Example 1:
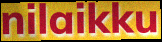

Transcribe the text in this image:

nilaikku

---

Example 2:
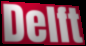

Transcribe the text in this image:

Delft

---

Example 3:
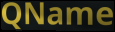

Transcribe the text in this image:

QName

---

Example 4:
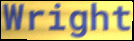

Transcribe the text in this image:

Wright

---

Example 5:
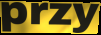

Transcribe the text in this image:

przy